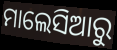
ମାଲେସିଆରୁ